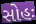
સોહઃ